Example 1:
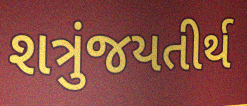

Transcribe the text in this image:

શત્રુંજયતીર્થ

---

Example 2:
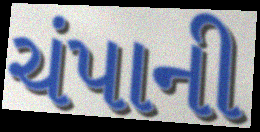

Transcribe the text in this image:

ચંપાની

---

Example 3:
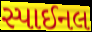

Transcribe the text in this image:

સ્પાઈનલ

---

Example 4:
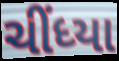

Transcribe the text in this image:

ચીંધ્યા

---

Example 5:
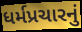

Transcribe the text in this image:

ધર્મપ્રચારનું